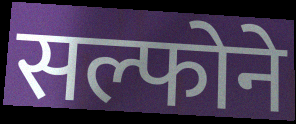
सल्फोने